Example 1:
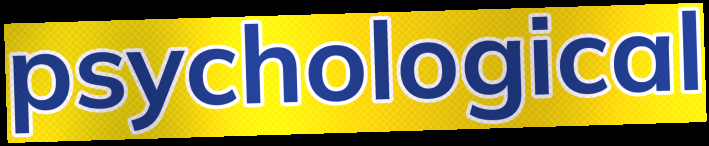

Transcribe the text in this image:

psychological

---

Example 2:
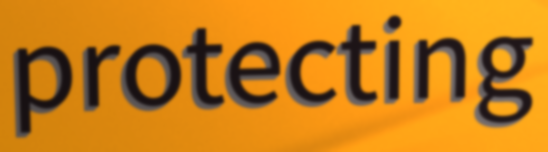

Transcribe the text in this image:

protecting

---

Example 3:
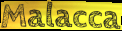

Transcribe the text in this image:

Malacca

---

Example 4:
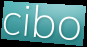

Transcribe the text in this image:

cibo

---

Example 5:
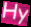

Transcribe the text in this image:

Hy